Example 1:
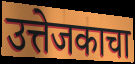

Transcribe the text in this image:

उत्तेजकाचा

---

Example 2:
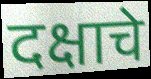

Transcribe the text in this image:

दक्षाचे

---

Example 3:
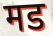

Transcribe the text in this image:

मड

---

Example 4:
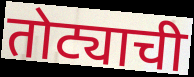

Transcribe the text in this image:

तोट्याची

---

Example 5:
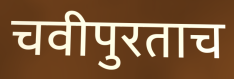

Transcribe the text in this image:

चवीपुरताच